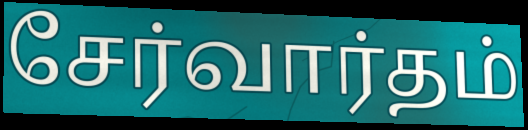
சேர்வார்தம்